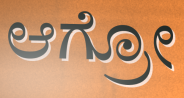
ಆಗ್ರೋ